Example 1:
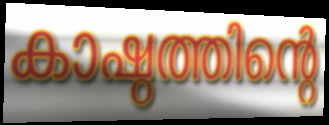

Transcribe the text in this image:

കാഷ്ഠത്തിന്റെ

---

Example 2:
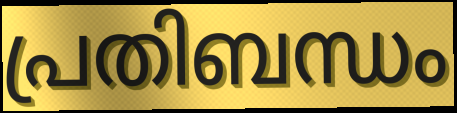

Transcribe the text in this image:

പ്രതിബന്ധം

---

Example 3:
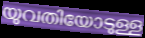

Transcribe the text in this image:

യുവതിയോടുള്ള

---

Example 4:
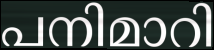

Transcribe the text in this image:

പനിമാറി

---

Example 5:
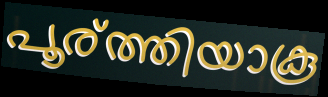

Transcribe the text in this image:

പൂര്ത്തിയാകൂ